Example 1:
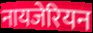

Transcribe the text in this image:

नायजेरियन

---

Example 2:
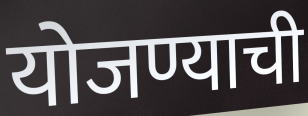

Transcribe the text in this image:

योजण्याची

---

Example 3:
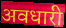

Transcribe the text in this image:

अवधारी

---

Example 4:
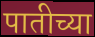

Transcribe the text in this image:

पातीच्या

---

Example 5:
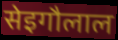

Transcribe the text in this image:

सेइगौलाल